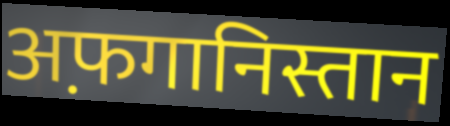
अ़फगानिस्तान